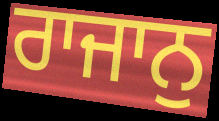
ਰਾਜਾਨੁ